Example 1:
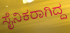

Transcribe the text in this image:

ಸೈನಿಕರಾಗಿದ್ದ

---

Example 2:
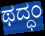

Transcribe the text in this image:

ಥದ್ಧಂ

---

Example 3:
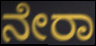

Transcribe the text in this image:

ನೇರಾ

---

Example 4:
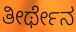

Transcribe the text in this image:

ತೀರ್ಥೇನ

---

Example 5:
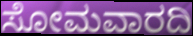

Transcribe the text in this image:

ಸೋಮವಾರದಿ